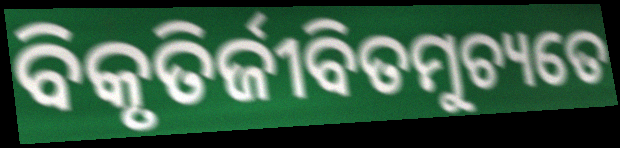
ବିକୃତିର୍ଜୀବିତମୁଚ୍ୟତେ